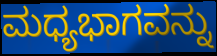
ಮಧ್ಯಭಾಗವನ್ನು